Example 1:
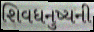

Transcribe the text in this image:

શિવધનુષ્યની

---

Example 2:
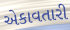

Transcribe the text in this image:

એકાવતારી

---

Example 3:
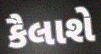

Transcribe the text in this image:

કૈલાશે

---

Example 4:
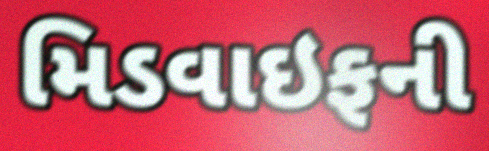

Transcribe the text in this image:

મિડવાઇફની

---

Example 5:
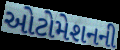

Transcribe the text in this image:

ઓટોમેશનની